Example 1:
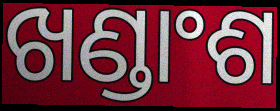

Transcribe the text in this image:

ଖଣ୍ଡାଂଶ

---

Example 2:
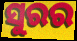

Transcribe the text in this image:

ସୁରର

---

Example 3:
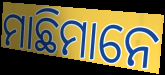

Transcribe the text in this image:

ମାଛିମାନେ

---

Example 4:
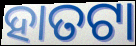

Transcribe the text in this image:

ହାତଟା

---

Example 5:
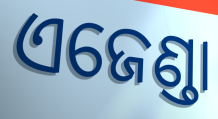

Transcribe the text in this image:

ଏଜେଣ୍ଡା